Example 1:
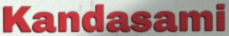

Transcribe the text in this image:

Kandasami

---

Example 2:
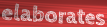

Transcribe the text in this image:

elaborates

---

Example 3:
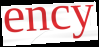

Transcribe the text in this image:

ency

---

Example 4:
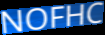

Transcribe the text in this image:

NOFHC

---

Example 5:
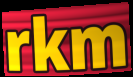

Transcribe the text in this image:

rkm